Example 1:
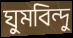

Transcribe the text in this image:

ঘুমবিন্দু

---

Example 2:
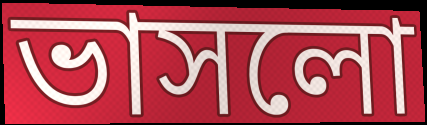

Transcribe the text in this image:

ভাসলো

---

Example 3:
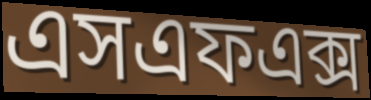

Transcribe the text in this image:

এসএফএক্স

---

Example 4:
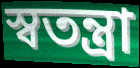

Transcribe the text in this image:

স্বতন্ত্রা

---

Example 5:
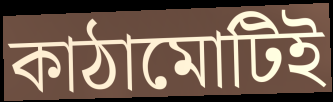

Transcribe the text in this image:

কাঠামোটিই